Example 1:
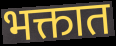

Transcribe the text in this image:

भक्तात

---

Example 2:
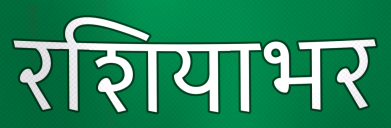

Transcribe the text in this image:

रशियाभर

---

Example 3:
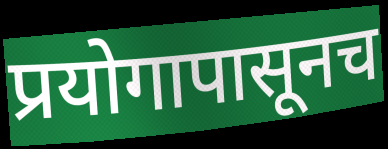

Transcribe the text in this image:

प्रयोगापासूनच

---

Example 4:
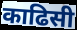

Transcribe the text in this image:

काढिसी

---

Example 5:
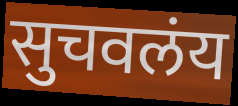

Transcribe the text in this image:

सुचवलंय